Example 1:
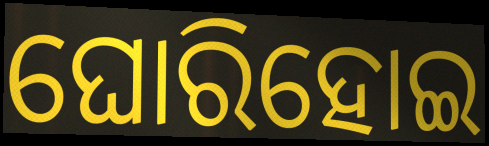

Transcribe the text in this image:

ଘୋରିହୋଇ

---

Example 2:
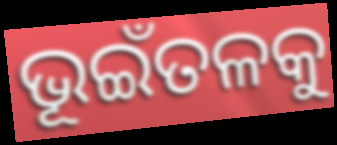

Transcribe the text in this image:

ଭୂଇଁତଳକୁ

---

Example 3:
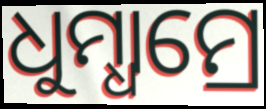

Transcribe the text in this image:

ଧୁମ୍ଧାମ୍ରେ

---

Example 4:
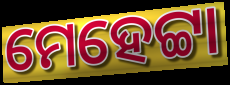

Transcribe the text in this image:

ମେହେଟ୍ଟା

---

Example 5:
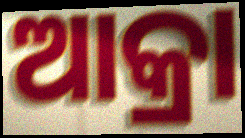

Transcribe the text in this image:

ଆକ୍ରା